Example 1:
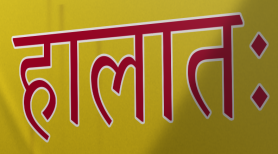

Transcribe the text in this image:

हालातः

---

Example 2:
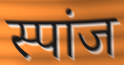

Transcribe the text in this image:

स्पांज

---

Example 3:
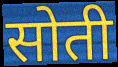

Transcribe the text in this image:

सोती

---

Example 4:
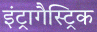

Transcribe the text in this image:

इंट्रागैस्ट्रिक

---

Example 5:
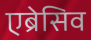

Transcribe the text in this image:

एब्रेसिव